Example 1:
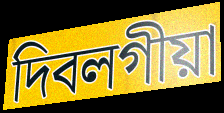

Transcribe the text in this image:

দিবলগীয়া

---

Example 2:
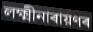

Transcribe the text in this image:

লক্ষ্মীনাৰায়ণৰ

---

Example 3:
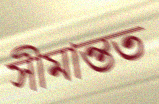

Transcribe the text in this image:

সীমান্তত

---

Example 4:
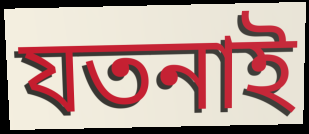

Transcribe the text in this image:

যতনাই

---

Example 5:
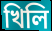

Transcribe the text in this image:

খিলি